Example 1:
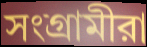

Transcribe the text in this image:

সংগ্রামীরা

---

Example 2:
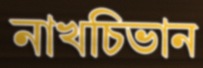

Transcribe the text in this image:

নাখচিভান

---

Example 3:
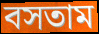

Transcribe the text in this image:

বসতাম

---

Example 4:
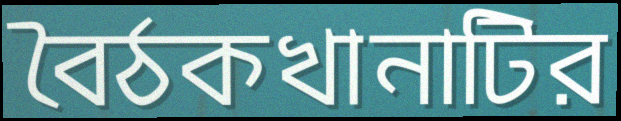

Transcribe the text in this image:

বৈঠকখানাটির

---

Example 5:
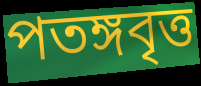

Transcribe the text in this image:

পতঙ্গবৃত্ত